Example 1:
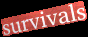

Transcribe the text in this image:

survivals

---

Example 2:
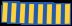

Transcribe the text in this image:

IIIIIIII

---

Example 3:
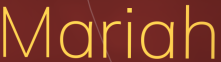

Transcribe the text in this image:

Mariah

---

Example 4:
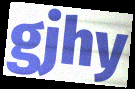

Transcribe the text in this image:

gjhy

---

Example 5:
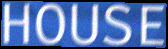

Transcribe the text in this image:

HOUSE